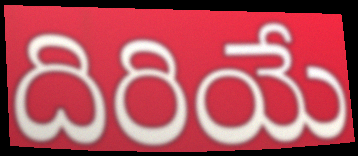
దిరియే